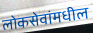
लोकसेवांमधील